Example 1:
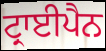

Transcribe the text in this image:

ਟ੍ਰਾਈਪੈਨ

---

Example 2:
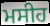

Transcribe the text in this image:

ਮਸੀਹ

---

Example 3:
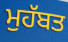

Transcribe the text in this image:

ਮੁਹੱਬਤ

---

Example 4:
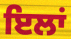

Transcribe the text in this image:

ਇਲਾਂ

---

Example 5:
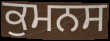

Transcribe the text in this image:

ਕੁਮਨਸ